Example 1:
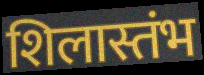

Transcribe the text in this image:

शिलास्तंभ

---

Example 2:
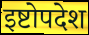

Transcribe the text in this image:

इष्टोपदेश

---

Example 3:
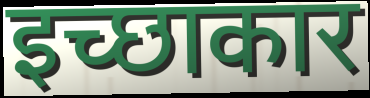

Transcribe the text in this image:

इच्छाकार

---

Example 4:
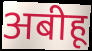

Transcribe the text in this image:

अबीहू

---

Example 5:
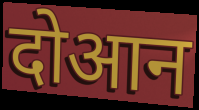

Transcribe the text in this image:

दोआन